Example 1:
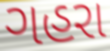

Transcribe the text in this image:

ગહરા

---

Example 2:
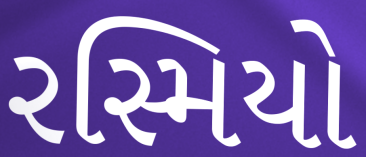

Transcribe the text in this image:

રસ્મિયો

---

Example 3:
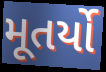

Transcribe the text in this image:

મૂતર્યો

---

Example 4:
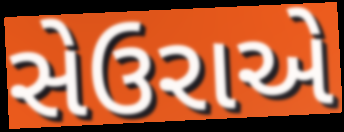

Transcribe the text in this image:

સેઉરાએ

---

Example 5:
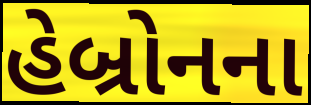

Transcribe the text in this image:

હેબ્રોનના